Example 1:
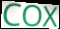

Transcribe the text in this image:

COX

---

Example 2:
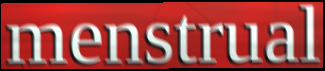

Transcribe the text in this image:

menstrual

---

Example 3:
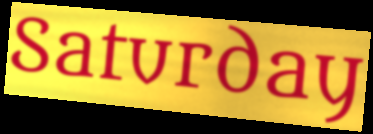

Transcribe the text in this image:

Saturday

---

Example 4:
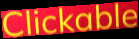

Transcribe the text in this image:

Clickable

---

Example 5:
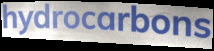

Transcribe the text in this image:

hydrocarbons